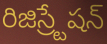
రిజిస్ర్టేషన్